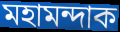
মহামন্দাক